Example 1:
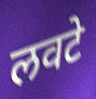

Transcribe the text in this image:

लवटे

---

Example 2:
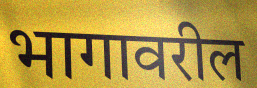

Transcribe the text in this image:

भागावरील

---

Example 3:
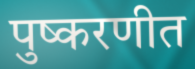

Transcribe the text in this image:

पुष्करणीत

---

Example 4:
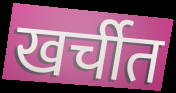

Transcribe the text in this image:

खर्चीत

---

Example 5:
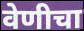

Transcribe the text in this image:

वेणीचा